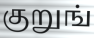
குறுங்